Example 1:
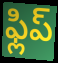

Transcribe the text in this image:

ఫ్లిప్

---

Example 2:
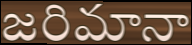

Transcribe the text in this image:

జరిమానా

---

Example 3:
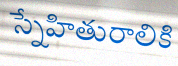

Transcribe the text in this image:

స్నేహితురాలికి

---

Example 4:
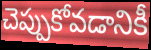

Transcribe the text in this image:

చెప్పుకోవడానికీ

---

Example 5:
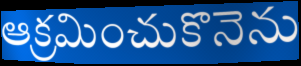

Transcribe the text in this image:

ఆక్రమించుకొనెను